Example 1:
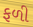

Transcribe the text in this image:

ફળી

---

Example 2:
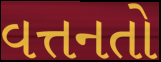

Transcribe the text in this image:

વત્તનતો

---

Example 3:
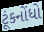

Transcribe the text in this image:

ટૂંકનોંધો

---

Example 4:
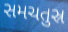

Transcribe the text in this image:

સમચતુસ્ર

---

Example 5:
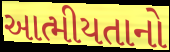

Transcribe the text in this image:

આત્મીયતાનો